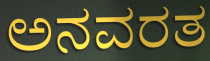
ಅನವರತ